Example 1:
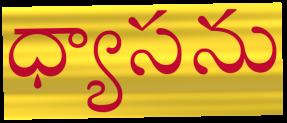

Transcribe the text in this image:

ధ్యాసను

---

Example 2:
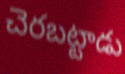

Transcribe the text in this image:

చెరబట్టాడు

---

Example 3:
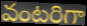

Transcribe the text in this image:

వంటరిగా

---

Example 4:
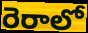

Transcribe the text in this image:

రెరాలో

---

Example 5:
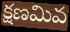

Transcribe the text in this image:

క్షణమివ